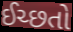
ઈચ્છતો